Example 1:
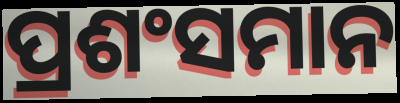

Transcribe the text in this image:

ପ୍ରଶଂସମାନ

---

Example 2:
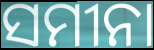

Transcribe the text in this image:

ସମୀନା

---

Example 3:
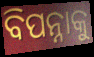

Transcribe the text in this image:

ବିପନ୍ନାକୁ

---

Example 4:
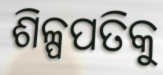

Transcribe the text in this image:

ଶିଳ୍ପପତିକୁ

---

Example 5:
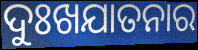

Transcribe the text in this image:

ଦୁଃଖଯାତନାର